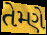
તેમ્ણે